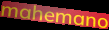
mahemano